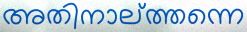
അതിനാല്ത്തന്നെ